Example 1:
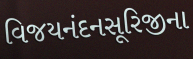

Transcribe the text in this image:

વિજયનંદનસૂરિજીના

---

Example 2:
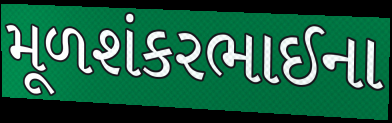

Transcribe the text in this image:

મૂળશંકરભાઈના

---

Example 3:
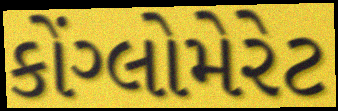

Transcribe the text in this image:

કોંગ્લોમેરેટ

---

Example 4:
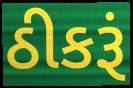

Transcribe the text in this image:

ઠીકરૂં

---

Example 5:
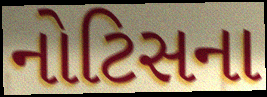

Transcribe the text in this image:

નોટિસના